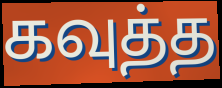
கவுத்த